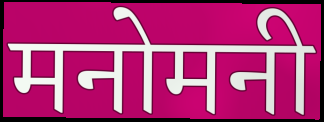
मनोमनी